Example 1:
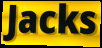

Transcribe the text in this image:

Jacks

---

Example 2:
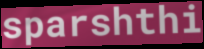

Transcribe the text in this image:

sparshthi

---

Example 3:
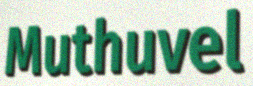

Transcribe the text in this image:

Muthuvel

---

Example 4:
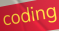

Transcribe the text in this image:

coding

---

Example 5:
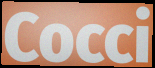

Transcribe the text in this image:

Cocci